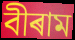
বীৰাম